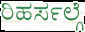
ರಿಹರ್ಸಲ್ಗೆ